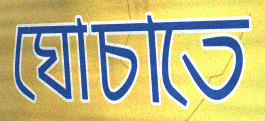
ঘোচাতে